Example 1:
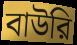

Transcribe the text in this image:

বাউরি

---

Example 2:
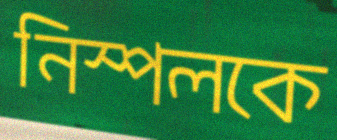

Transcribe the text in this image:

নিস্পলকে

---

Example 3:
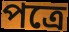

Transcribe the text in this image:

পত্রে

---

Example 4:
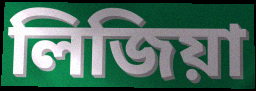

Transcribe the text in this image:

লিজিয়া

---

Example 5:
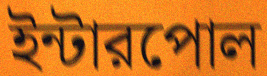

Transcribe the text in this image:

ইন্টারপোল